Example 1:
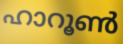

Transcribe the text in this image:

ഹാറൂൺ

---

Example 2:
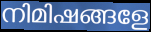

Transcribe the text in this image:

നിമിഷങ്ങളേ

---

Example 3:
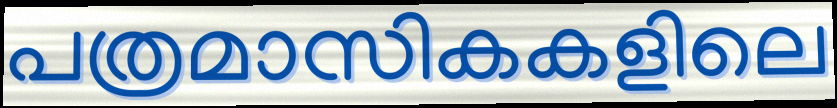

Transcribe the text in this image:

പത്രമാസികകളിലെ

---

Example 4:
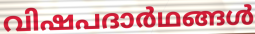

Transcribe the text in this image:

വിഷപദാർഥങ്ങൾ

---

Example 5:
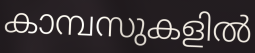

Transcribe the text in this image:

കാമ്പസുകളിൽ